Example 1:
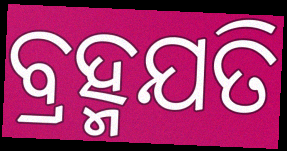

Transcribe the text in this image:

ବ୍ରହ୍ମଯତି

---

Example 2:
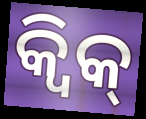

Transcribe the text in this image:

କ୍ୱିକ୍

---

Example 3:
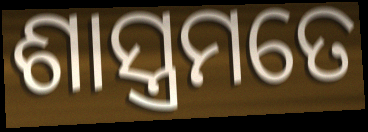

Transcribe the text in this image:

ଶାସ୍ତ୍ରମତେ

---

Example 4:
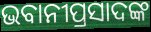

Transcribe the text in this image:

ଭବାନୀପ୍ରସାଦଙ୍କ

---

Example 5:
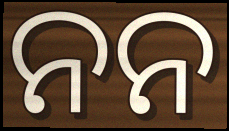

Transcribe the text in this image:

ନନ